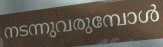
നടന്നുവരുമ്പോൾ